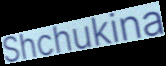
Shchukina